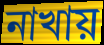
নাখায়